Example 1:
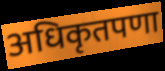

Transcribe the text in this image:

अधिकृतपणा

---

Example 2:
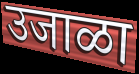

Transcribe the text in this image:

उजाळा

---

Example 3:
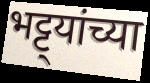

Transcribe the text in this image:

भट्ट्यांच्या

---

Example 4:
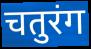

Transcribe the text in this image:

चतुरंग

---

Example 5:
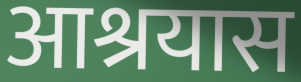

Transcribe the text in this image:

आश्रयास